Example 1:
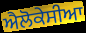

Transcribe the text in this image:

ਐਲੋਕੇਸੀਆ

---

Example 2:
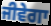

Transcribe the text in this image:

ਜੀਵੇਗਾ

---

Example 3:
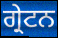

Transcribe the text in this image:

ਗ੍ਰੇਟਨ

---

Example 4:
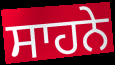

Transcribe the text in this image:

ਸਾਹਨੇ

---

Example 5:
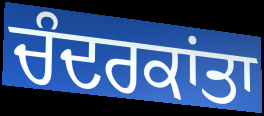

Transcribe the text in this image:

ਚੰਦਰਕਾਂਤਾ